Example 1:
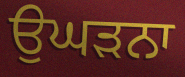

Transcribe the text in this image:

ਉਘੜਨਾ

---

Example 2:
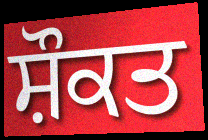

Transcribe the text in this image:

ਸ਼ੌਕਤ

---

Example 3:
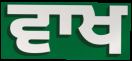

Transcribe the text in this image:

ਵਾਖ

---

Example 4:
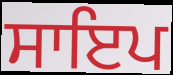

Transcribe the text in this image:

ਸਾਇਪ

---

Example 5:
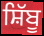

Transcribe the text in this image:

ਸ਼ਿੱਬੂ